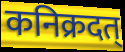
कनिक्रदत्